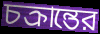
চক্রান্তের